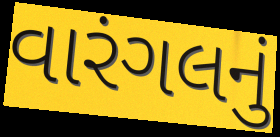
વારંગલનું